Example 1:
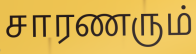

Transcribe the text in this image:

சாரணரும்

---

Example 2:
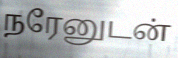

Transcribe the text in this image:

நரேனுடன்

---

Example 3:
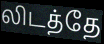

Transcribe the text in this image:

லிடத்தே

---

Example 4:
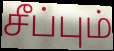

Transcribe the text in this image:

சீப்பும்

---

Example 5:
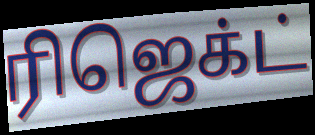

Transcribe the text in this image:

ரிஜெக்ட்